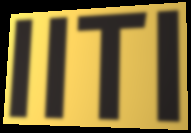
IITI